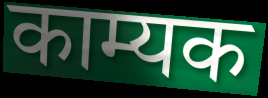
काम्यक